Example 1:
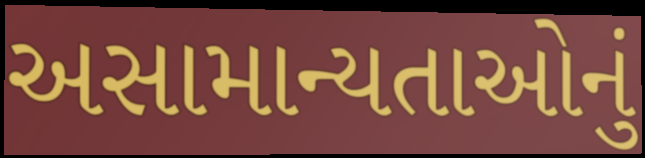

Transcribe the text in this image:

અસામાન્યતાઓનું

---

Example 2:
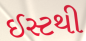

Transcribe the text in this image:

ઈસ્ટથી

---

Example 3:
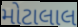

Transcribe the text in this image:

મોટાલાલ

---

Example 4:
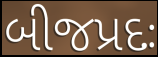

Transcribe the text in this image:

બીજપ્રદઃ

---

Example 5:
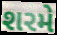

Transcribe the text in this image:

શરમે